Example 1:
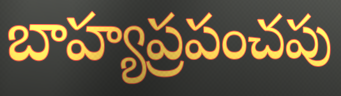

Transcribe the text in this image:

బాహ్యప్రపంచపు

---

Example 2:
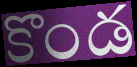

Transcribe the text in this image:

కొండ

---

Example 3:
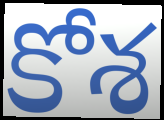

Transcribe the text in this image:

కోశ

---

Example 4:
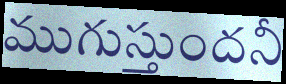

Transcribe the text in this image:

ముగుస్తుందనీ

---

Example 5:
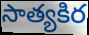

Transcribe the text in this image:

సాత్యకిర